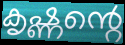
കൃഷ്ണന്റെ